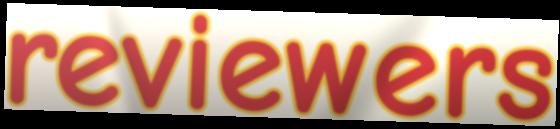
reviewers